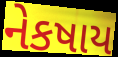
નેકષાય